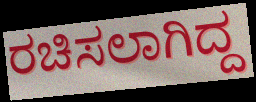
ರಚಿಸಲಾಗಿದ್ದ